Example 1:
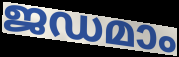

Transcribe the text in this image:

ജഡമാം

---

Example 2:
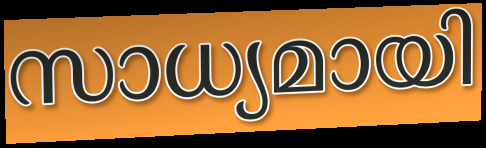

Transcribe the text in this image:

സാധ്യമായി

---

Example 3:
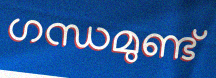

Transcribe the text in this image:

ഗന്ധമുണ്ട്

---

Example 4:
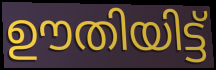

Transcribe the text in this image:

ഊതിയിട്ട്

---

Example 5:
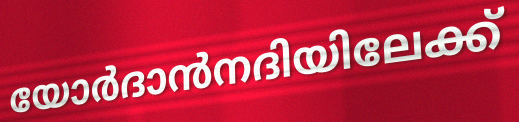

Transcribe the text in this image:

യോർദാൻനദിയിലേക്ക്